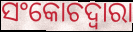
ସଂକୋଚଦ୍ୱାରା